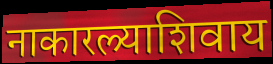
नाकारल्याशिवाय